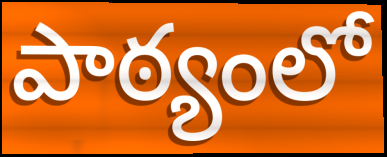
పాఠ్యంలో